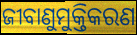
ଜୀବାଣୁମୁକ୍ତିକରଣ